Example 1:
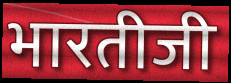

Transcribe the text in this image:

भारतीजी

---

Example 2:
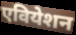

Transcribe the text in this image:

एवियेशन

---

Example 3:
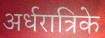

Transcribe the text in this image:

अर्धरात्रिके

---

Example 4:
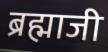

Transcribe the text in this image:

ब्रह्माजी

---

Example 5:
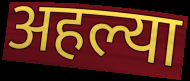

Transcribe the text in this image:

अहल्या